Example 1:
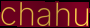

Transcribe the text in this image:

chahu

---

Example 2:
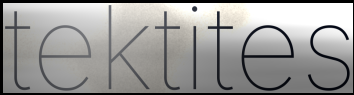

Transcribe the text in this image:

tektites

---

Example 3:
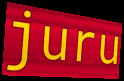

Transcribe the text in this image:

juru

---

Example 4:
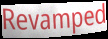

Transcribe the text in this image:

Revamped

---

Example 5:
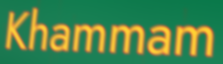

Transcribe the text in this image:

Khammam